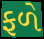
ફળે